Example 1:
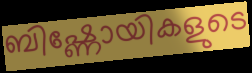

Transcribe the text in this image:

ബിഷ്ണോയികളുടെ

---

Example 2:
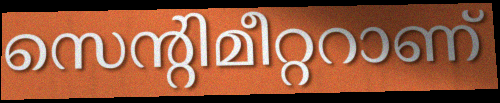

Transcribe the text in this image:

സെന്റിമീറ്ററാണ്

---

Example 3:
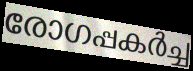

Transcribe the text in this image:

രോഗപ്പകർച്ച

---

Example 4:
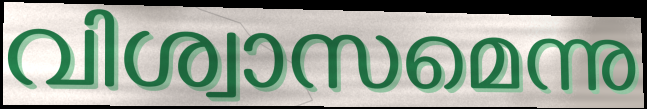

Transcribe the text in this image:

വിശ്വാസമെന്നു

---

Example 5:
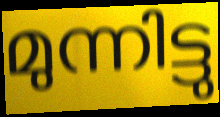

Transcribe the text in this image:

മുന്നിട്ടു